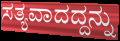
ಸತ್ಯವಾದದ್ದನ್ನು